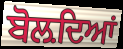
ਬੋਲ਼ਦਿਆਂ